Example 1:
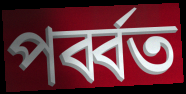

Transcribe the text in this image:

পৰ্ব্বত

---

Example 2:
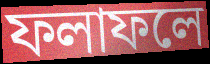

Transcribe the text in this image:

ফলাফলে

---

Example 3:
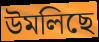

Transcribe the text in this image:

উমলিছে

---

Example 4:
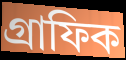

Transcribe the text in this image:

গ্ৰাফিক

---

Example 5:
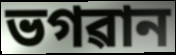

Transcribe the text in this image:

ভগৱান